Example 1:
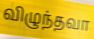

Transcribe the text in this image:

விழுந்தவா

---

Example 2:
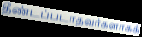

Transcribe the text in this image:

தீண்டப்படாதவர்களாகக்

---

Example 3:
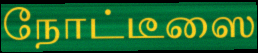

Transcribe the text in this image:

நோட்டீஸை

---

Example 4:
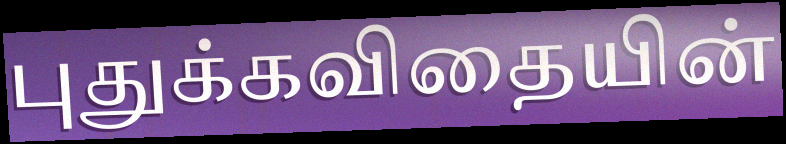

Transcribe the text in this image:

புதுக்கவிதையின்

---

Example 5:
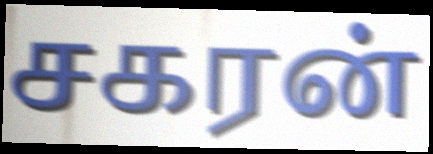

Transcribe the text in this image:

சகரன்